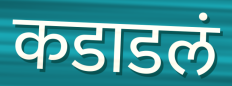
कडाडलं